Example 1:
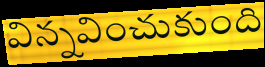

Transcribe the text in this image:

విన్నవించుకుంది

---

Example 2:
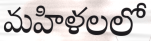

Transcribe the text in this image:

మహిళలలో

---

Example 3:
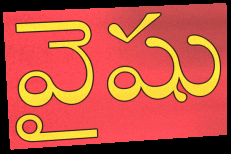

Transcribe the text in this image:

వైషు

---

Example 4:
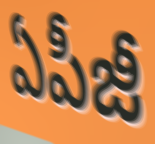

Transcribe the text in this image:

ఏపీజీ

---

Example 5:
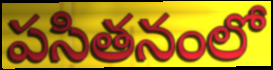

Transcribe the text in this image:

పసితనంలో